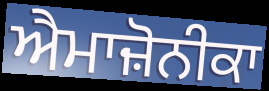
ਐਮਾਜ਼ੋਨੀਕਾ